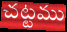
చట్టము